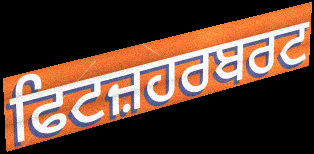
ਫਿਟਜ਼ਹਰਬਰਟ